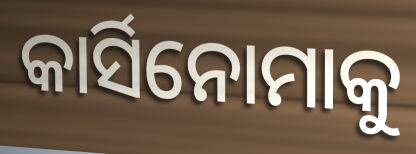
କାର୍ସିନୋମାକୁ